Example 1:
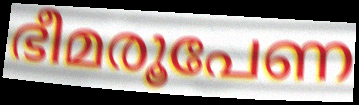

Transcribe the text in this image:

ഭീമരൂപേണ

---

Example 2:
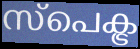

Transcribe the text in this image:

സ്‌പെക്ട്ര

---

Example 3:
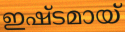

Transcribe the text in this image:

ഇഷ്ടമായ്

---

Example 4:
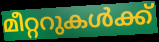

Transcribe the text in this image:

മീറ്ററുകൾക്ക്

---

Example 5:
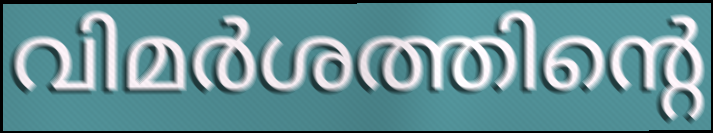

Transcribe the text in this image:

വിമർശത്തിന്റെ